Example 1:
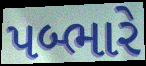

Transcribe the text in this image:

પબ્ભારે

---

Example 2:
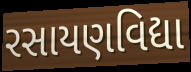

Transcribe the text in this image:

રસાયણવિદ્યા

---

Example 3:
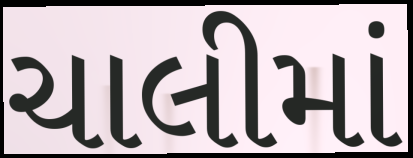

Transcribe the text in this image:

ચાલીમાં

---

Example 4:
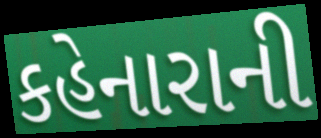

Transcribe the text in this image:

કહેનારાની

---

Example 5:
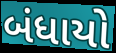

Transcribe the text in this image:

બંધાયો